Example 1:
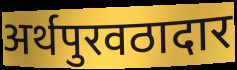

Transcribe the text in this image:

अर्थपुरवठादार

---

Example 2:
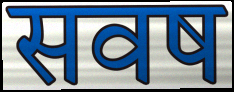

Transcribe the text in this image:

सवष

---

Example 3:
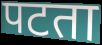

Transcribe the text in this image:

पटता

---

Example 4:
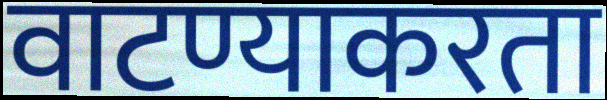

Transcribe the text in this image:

वाटण्याकरता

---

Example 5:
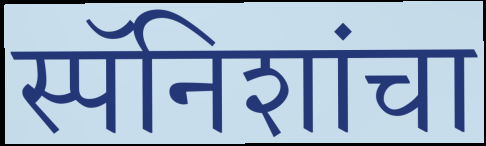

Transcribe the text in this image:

स्पॅनिशांचा